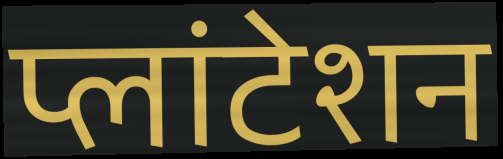
प्लांटेशन